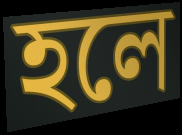
হলে